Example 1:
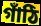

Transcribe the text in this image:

গাঁঠি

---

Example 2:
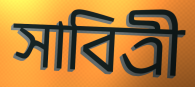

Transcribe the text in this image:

সাবিত্ৰী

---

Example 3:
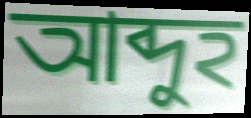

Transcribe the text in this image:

আব্দুহ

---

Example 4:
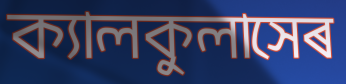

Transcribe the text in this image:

ক্যালকুলাসেৰ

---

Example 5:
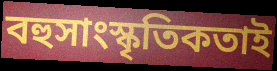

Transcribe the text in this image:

বহুসাংস্কৃতিকতাই